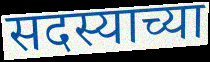
सदस्याच्या